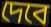
দেবে